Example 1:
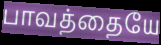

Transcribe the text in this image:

பாவத்தையே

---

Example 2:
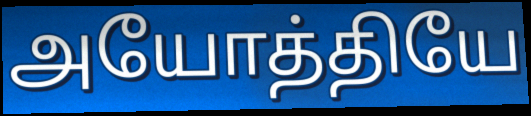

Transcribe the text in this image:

அயோத்தியே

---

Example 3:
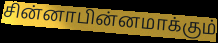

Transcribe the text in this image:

சின்னாபின்னமாக்கும்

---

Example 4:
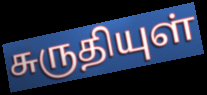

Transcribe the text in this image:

சுருதியுள்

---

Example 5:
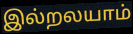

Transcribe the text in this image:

இல்றலயாம்